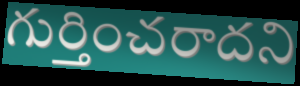
గుర్తించరాదని